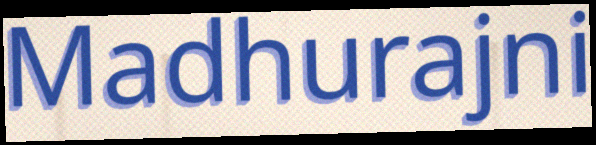
Madhurajni